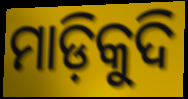
ମାଡ଼ିକୁଦି